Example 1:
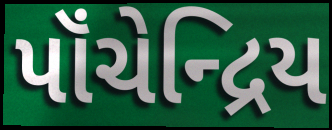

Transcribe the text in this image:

પૉંચેન્દ્રિય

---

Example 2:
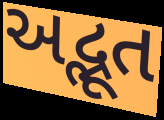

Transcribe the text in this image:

અદ્ભૂત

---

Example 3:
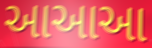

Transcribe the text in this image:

આઆઆ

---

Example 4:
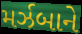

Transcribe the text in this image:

મર્ઝબાને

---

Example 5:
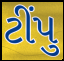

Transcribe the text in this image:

ટીંપુ